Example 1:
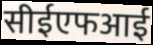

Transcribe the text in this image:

सीईएफआई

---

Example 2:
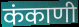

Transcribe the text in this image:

कंकाणी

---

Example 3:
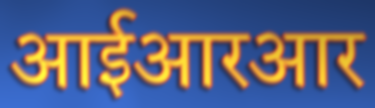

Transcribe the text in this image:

आईआरआर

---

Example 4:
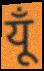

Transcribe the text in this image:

यूँ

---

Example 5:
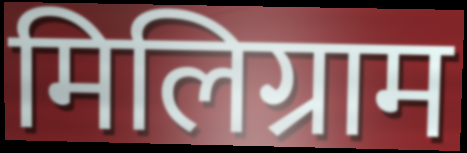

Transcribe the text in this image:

मिलिग्राम